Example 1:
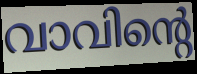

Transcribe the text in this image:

വാവിന്റെ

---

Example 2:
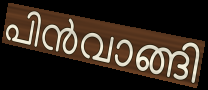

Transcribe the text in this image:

പിൻവാങ്ങി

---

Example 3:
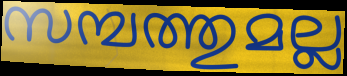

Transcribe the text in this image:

സമ്പത്തുമല്ല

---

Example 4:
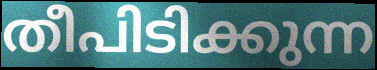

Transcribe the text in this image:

തീപിടിക്കുന്ന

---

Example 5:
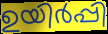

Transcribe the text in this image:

ഉയിർപ്പി